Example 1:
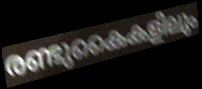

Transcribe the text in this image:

രണ്ടുകൈകളിലും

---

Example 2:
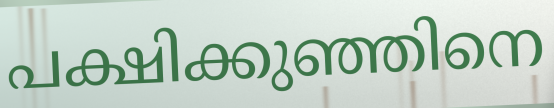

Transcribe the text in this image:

പക്ഷിക്കുഞ്ഞിനെ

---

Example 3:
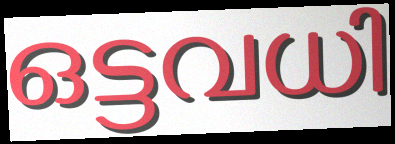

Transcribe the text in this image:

ഒട്ടവധി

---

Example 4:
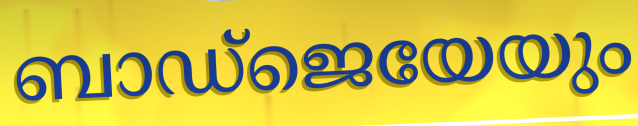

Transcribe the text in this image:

ബാഡ്ജെയേയും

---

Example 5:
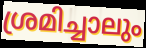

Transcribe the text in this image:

ശ്രമിച്ചാലും